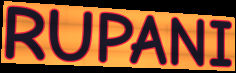
RUPANI